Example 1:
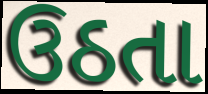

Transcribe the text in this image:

ઉઠતા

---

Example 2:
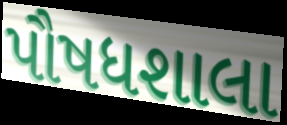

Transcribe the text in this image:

પૌષધશાલા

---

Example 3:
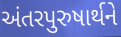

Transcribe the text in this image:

અંતરપુરુષાર્થને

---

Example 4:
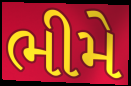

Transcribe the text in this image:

ભીમે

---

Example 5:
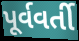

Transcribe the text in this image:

પૂર્વવર્તી